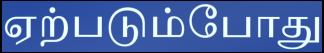
ஏற்படும்போது